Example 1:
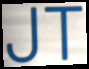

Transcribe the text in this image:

JT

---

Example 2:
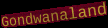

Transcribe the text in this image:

Gondwanaland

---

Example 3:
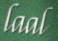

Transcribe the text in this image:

laal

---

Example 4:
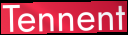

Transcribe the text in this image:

Tennent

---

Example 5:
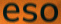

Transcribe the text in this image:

eso